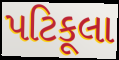
પટિકૂલા